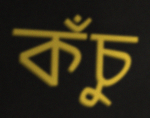
কঁচু